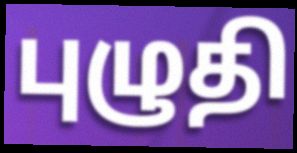
புழுதி